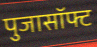
पुजासॉफ्ट